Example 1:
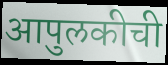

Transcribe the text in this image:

आपुलकीची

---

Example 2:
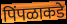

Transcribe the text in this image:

पिंपळाकडे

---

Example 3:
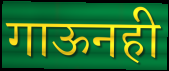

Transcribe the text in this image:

गाऊनही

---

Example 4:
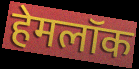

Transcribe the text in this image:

हेमलॉक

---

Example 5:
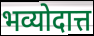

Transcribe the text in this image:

भव्योदात्त